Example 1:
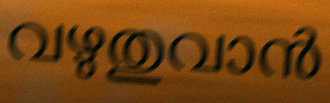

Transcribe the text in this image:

വഴുതുവാൻ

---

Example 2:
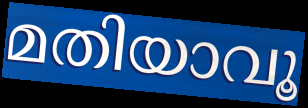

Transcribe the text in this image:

മതിയാവൂ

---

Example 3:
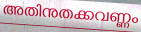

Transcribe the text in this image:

അതിനുതക്കവണ്ണം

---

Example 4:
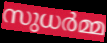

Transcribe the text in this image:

സുധർമ്മ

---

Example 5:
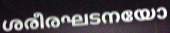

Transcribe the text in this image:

ശരീരഘടനയോ